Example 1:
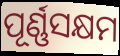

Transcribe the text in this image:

ପୂର୍ଣ୍ଣସକ୍ଷମ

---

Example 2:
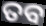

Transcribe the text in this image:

ତବ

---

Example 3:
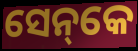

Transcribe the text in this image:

ସେନ୍‌କେ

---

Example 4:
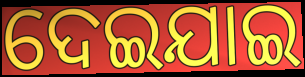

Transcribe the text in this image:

ଦେଇଯାଇ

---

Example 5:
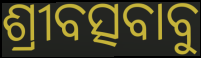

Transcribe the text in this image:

ଶ୍ରୀବତ୍ସବାବୁ